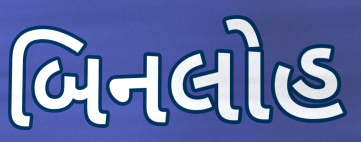
બિનલોહ